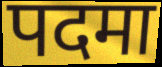
पदमा